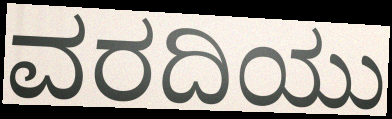
ವರದಿಯು